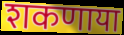
शकणाया